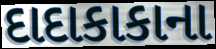
દાદાકાકાના